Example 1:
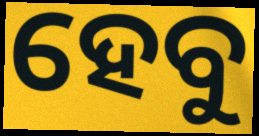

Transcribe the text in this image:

ହେବୁ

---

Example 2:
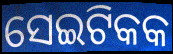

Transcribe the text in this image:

ସେଇଟିକକ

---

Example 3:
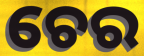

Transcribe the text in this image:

ଚେର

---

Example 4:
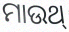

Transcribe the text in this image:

ମାଉଥ୍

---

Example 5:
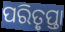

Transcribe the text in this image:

ପରିତୃପ୍ତା